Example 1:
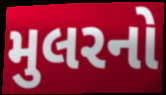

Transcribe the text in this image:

મુલરનો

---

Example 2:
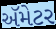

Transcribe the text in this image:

ઍમેટર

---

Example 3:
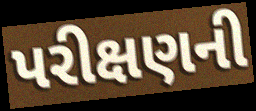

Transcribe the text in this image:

પરીક્ષણની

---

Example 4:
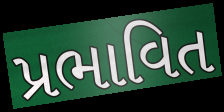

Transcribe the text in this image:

પ્રભાવિત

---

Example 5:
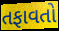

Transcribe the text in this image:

તફાવતો